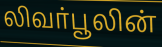
லிவர்பூலின்